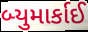
બ્યુમાર્કાઈ